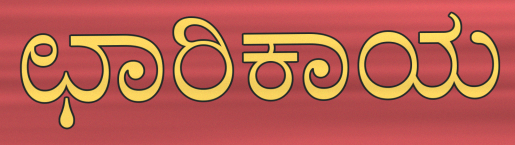
ಛಾರಿಕಾಯ